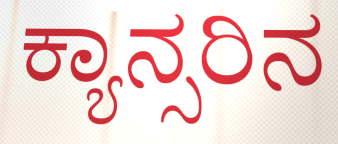
ಕ್ಯಾನ್ಸರಿನ